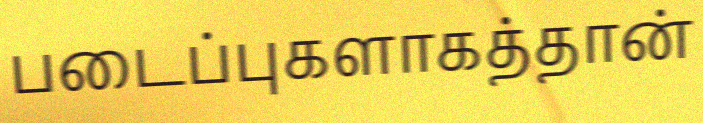
படைப்புகளாகத்தான்